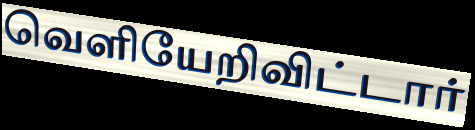
வெளியேறிவிட்டார்